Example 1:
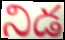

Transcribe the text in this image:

నిడ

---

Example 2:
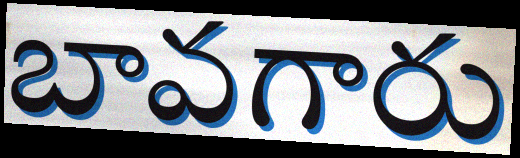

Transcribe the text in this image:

బావగారు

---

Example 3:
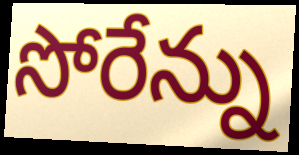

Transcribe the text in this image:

సోరేన్ను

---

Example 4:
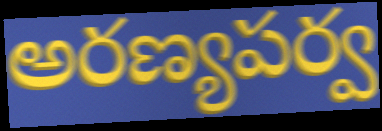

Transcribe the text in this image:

అరణ్యపర్వ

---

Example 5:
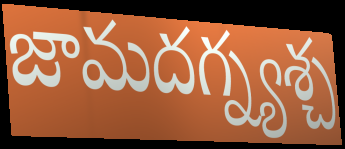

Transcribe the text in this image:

జామదగ్న్యశ్చ